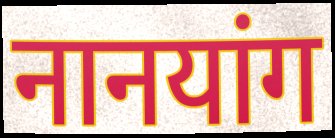
नानयांग